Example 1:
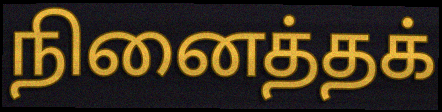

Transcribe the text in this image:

நினைத்தக்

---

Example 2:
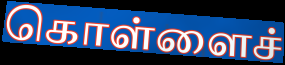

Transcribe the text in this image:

கொள்ளைச்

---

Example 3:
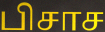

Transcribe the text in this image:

பிசாச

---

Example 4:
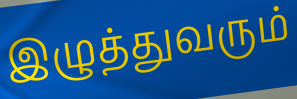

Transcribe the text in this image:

இழுத்துவரும்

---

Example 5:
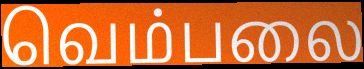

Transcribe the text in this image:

வெம்பலை